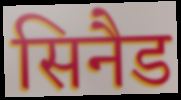
सिनैड